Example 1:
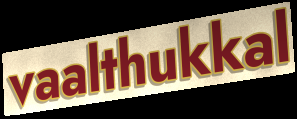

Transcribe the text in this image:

vaalthukkal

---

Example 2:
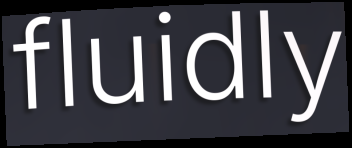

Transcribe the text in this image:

fluidly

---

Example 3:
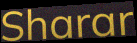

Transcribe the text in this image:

Sharar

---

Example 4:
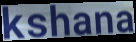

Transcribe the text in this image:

kshana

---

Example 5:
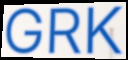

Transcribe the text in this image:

GRK